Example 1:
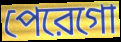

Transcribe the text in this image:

পেরেগো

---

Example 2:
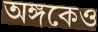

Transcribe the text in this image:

অঙ্গকেও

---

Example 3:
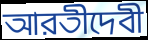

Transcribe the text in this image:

আরতীদেবী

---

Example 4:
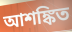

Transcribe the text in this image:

আশঙ্কিত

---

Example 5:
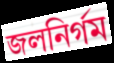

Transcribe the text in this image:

জলনির্গম